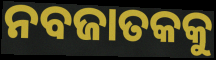
ନବଜାତକକୁ